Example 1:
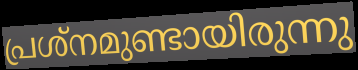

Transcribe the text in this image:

പ്രശ്നമുണ്ടായിരുന്നു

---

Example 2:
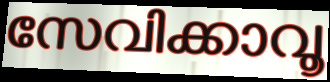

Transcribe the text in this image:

സേവിക്കാവൂ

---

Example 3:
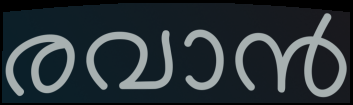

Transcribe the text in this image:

രവാൻ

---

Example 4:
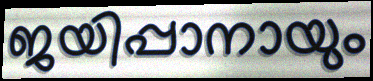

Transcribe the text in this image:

ജയിപ്പാനായും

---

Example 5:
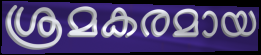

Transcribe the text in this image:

ശ്രമകരമായ